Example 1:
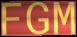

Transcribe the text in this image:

FGM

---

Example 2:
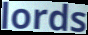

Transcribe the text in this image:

lords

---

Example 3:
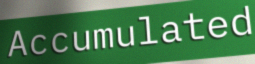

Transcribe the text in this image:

Accumulated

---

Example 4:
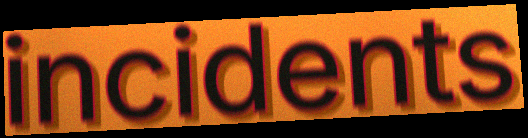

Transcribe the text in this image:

incidents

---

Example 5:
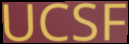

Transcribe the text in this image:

UCSF